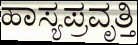
ಹಾಸ್ಯಪ್ರವೃತ್ತಿ